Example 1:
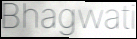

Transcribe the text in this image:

Bhagwati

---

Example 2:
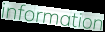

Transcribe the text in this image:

information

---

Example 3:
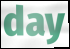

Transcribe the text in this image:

day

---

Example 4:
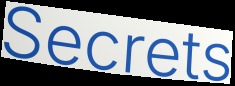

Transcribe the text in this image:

Secrets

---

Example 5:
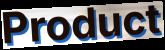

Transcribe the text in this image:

Product